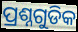
ପ୍ରଶ୍ନଗୁଡିକ